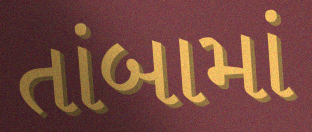
તાંબામાં